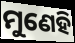
ମୁଣେହି